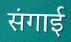
संगाई